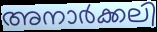
അനാർക്കലി